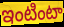
ఇంటింటా